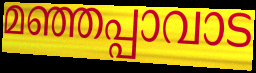
മഞ്ഞപ്പാവാട